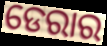
ଡେରାର